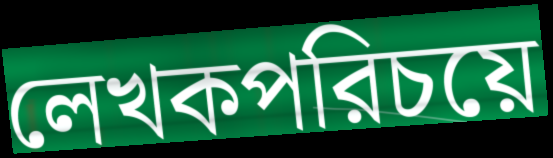
লেখকপরিচয়ে